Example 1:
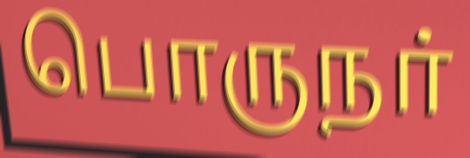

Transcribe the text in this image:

பொருநர்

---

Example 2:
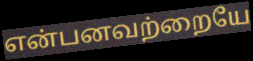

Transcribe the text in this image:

என்பனவற்றையே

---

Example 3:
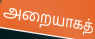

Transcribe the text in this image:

அறையாகத்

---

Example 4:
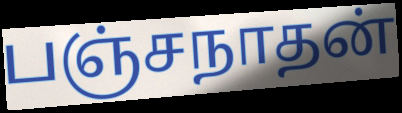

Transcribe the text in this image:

பஞ்சநாதன்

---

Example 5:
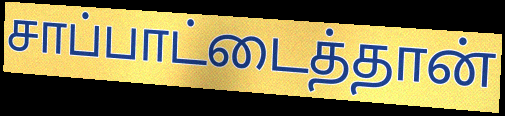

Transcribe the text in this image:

சாப்பாட்டைத்தான்